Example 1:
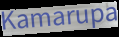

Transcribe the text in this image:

Kamarupa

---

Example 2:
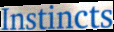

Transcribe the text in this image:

Instincts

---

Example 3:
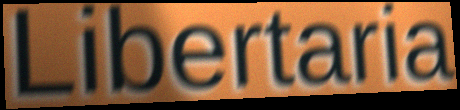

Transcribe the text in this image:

Libertaria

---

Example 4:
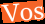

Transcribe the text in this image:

Vos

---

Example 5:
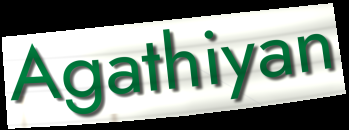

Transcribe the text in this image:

Agathiyan